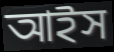
আইস